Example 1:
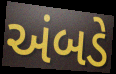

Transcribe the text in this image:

અંબડે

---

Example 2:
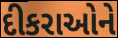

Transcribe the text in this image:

દીકરાઓને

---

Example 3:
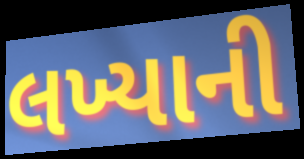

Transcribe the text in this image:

લખ્યાની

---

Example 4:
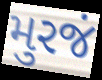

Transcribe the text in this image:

મુરજં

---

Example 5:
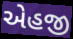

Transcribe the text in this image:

એહજી